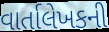
વાર્તાલેખકની